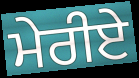
ਮੇਰੀਏ